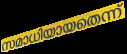
സമാധിയായതെന്ന്